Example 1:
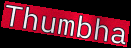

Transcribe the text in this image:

Thumbha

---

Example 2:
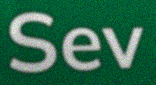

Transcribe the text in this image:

Sev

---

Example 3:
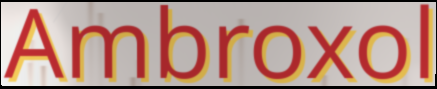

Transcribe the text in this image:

Ambroxol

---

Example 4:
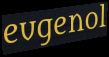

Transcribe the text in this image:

eugenol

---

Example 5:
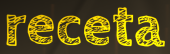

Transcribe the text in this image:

receta